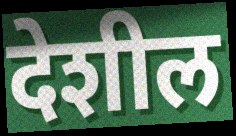
देशील